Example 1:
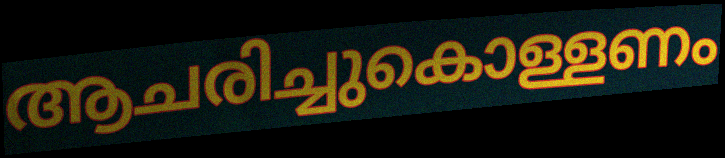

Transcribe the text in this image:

ആചരിച്ചുകൊള്ളണം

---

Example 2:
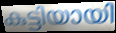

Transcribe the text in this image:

കുട്ടിയായി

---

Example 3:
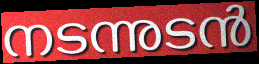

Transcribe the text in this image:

നടന്നുടൻ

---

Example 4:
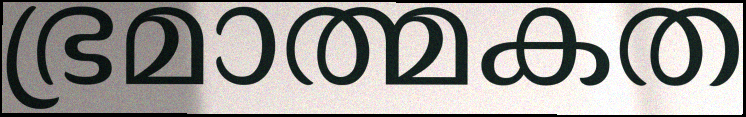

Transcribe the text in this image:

ഭ്രമാത്മകത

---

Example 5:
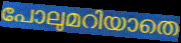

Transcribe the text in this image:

പോലുമറിയാതെ